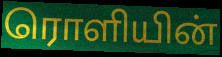
ரொளியின்